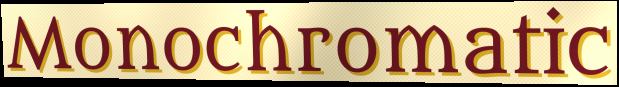
Monochromatic